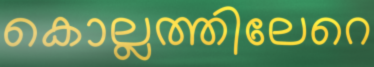
കൊല്ലത്തിലേറെ